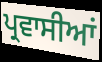
ਪ੍ਰਵਾਸੀਆਂ